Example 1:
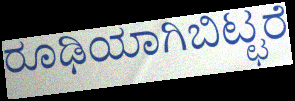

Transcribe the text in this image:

ರೂಢಿಯಾಗಿಬಿಟ್ಟರೆ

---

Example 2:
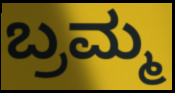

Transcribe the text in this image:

ಬ್ರಮ್ಮ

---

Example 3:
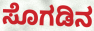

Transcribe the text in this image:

ಸೊಗಡಿನ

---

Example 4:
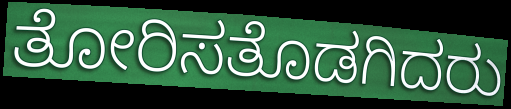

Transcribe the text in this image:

ತೋರಿಸತೊಡಗಿದರು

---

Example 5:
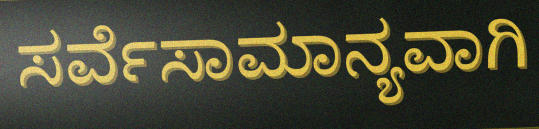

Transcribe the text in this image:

ಸರ್ವೆಸಾಮಾನ್ಯವಾಗಿ